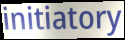
initiatory